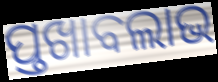
ପ୍ତଖାବଲାଭ